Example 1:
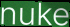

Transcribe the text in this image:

nuke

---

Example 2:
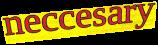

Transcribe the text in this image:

neccesary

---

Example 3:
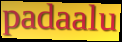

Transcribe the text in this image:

padaalu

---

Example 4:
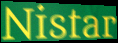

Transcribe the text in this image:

Nistar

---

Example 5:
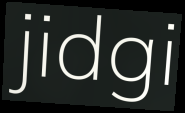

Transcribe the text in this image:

jidgi